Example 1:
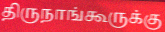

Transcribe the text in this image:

திருநாங்கூருக்கு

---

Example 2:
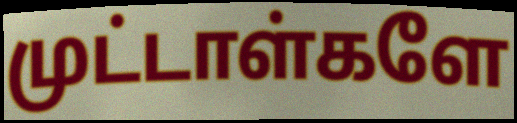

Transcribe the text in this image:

முட்டாள்களே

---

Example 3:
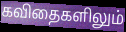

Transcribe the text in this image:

கவிதைகளிலும்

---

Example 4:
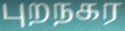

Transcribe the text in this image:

புறநகர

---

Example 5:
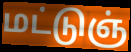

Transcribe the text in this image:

மட்டுஞ்